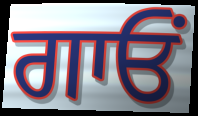
ਗਾਓਂ